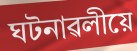
ঘটনাৱলীয়ে